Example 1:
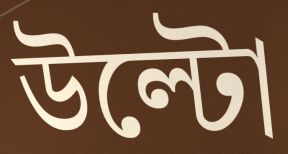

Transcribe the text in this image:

উল্টো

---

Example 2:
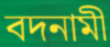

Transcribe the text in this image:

বদনামী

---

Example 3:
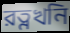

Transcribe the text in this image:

রত্নখনি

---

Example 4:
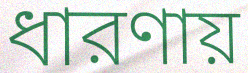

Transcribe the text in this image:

ধারণায়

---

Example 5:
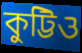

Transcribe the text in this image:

কুট্টিও